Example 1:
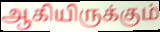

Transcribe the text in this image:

ஆகியிருக்கும்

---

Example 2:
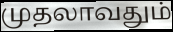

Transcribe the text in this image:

முதலாவதும்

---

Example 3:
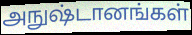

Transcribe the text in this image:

அநுஷ்டானங்கள்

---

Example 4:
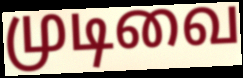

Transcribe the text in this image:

முடிவை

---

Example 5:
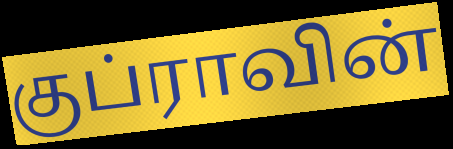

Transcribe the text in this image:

குப்ராவின்